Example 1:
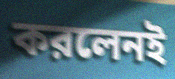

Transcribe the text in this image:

করলেনই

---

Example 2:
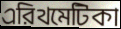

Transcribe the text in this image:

এরিথমেটিকা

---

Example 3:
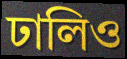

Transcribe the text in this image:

ঢালিও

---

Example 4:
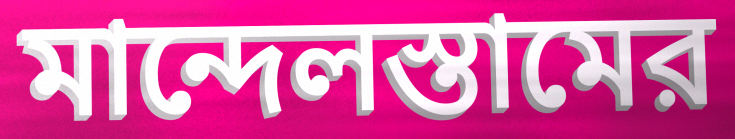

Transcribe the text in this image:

মান্দেলস্তামের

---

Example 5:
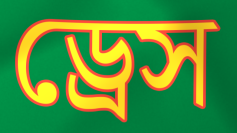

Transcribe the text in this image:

ড্রেস